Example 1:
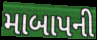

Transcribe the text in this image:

માબાપની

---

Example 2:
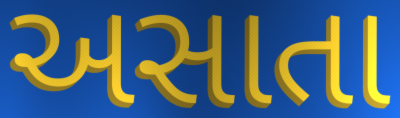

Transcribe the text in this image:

અસાતા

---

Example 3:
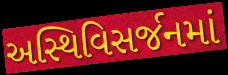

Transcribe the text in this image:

અસ્થિવિસર્જનમાં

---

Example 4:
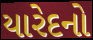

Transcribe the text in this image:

યારેદનો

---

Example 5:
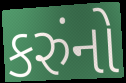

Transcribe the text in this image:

કરુંનો